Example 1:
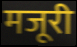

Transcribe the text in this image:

मजूरी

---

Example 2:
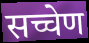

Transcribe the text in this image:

सच्चेण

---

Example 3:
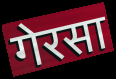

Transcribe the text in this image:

गेरसा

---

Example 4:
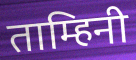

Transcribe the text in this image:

ताम्हिनी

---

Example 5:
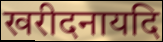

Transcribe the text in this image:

खरीदनायदि